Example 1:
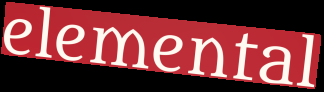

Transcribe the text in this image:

elemental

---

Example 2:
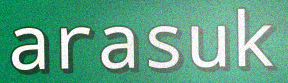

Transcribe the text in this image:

arasuk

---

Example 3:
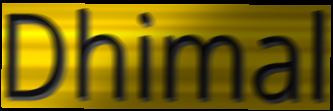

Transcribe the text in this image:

Dhimal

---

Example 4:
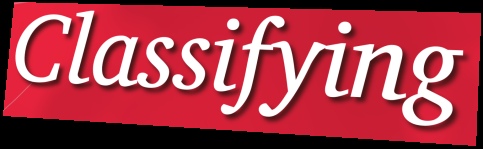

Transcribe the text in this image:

Classifying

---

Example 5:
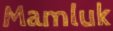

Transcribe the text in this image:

Mamluk